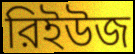
রিইউজ